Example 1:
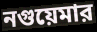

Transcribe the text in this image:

নগুয়েমার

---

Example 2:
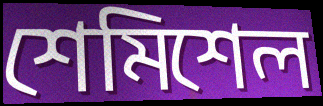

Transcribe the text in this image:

শেমিশেল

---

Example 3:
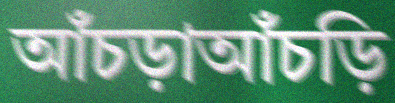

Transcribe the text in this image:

আঁচড়াআঁচড়ি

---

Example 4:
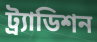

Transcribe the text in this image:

ট্র্যাডিশন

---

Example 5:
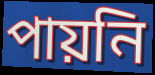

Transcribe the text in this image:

পায়নি